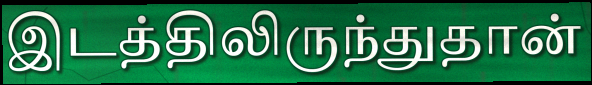
இடத்திலிருந்துதான்